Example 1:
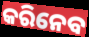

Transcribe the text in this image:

କରିନେବ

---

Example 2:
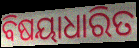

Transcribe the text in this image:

ବିଷୟାଧାରିତ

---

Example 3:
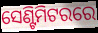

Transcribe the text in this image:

ସେଣ୍ଟିମିଟରରେ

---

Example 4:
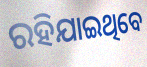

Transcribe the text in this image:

ରହିଯାଇଥିବେ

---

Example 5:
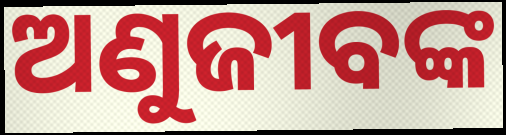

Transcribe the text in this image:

ଅଣୁଜୀବଙ୍କ